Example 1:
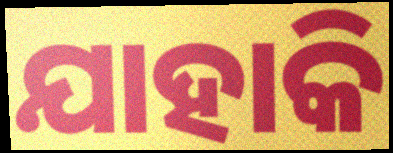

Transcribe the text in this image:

ଯାହାକି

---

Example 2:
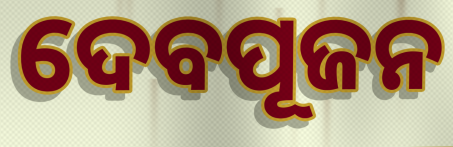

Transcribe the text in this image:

ଦେବପୂଜନ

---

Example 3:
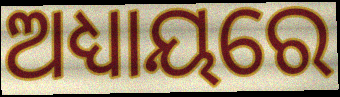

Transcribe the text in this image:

ଅଧ୍ୟାୟରେ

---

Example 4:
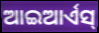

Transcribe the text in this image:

ଆଇଆର୍ଏସ୍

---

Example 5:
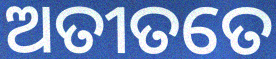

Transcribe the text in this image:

ଅତୀତତେ